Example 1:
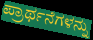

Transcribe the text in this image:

ಪ್ರಾರ್ಥನೆಗಳನ್ನು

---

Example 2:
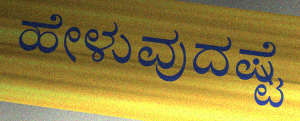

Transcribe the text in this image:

ಹೇಳುವುದಷ್ಟೆ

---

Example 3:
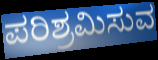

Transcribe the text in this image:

ಪರಿಶ್ರಮಿಸುವ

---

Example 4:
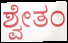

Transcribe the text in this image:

ಶ್ವೇತಂ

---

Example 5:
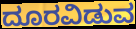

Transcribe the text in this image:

ದೂರವಿಡುವ